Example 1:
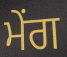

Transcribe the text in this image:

ਮੇਂਗ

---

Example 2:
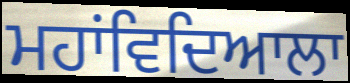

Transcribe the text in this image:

ਮਹਾਂਵਿਦਿਆਲਾ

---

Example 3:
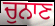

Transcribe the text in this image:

ਚੁਨਾਣ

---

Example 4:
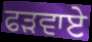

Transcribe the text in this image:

ਫੜਵਾਏ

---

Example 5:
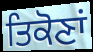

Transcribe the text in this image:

ਤਿਕੋਣਾਂ